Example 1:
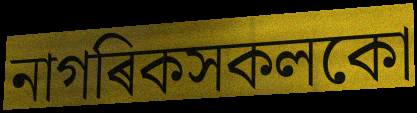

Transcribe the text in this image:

নাগৰিকসকলকো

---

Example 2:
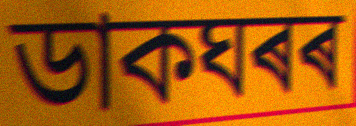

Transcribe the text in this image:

ডাকঘৰৰ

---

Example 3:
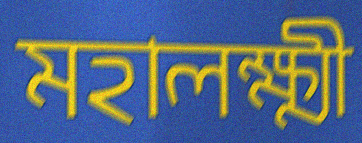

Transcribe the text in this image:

মহালক্ষ্মী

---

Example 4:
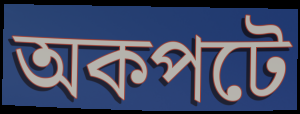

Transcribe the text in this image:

অকপটে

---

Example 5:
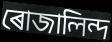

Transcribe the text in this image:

ৰোজালিন্দ